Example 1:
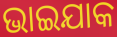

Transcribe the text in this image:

ଭାଇଯାକ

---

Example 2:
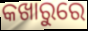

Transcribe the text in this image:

କଖାରୁରେ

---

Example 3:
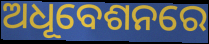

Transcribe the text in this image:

ଅଧୂବେଶନରେ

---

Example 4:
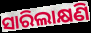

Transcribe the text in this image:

ସାରିଲାକ୍ଷଣି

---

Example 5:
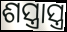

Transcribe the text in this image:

ଶସ୍ତ୍ରାସ୍ତ୍ର